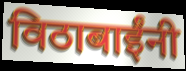
विठाबाईंनी